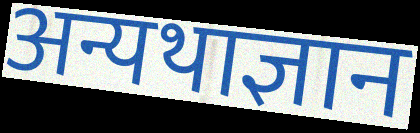
अन्यथाज्ञान